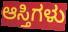
ಆಸ್ತಿಗಳು